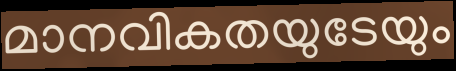
മാനവികതയുടേയും